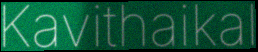
Kavithaikal